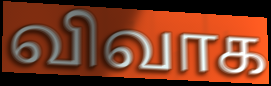
விவாக